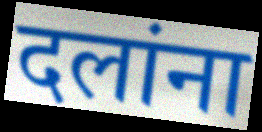
दलांना